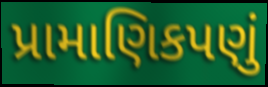
પ્રામાણિકપણું